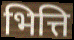
भित्ति